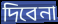
দিবেনা